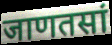
जाणतसां